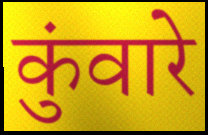
कुंवारे